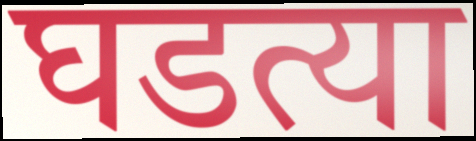
घडत्या